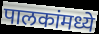
पालकांमध्ये